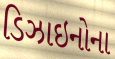
ડિઝાઇનોના